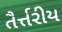
તૈર્ત્તરીય